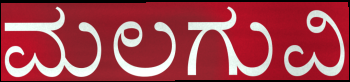
ಮಲಗುವಿ